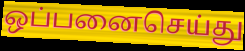
ஒப்பனைசெய்து